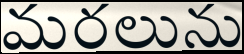
మరలును